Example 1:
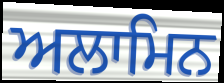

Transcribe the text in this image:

ਅਲਾਮਿਨ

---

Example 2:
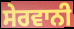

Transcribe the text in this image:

ਸੇਰਵਾਨੀ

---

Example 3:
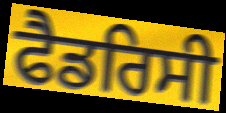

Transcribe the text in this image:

ਫੈਡਰਿਸੀ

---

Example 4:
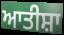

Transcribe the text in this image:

ਆਤੀਸ਼ਾ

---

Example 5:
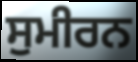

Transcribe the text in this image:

ਸੁਮੀਰਨ